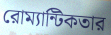
রোম্যান্টিকতার